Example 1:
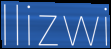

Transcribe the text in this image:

Ilizwi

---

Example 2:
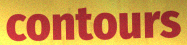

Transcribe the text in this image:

contours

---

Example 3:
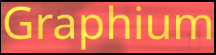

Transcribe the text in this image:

Graphium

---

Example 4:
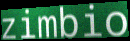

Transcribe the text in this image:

zimbio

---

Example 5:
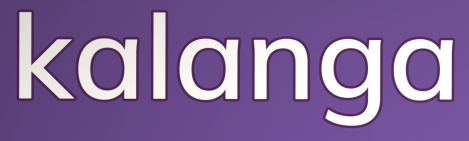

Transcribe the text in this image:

kalanga